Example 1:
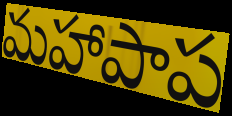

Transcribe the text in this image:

మహాపాప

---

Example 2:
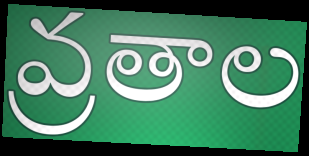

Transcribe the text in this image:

వ్రతాల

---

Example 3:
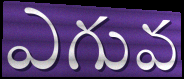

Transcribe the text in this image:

ఎగువ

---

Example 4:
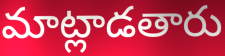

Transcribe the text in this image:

మాట్లాడతారు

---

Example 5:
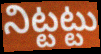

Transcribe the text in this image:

నిట్టట్టు